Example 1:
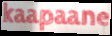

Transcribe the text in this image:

kaapaane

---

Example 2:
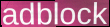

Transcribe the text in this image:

adblock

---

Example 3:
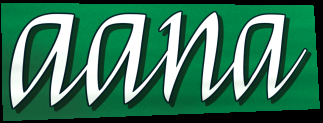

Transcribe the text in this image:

aana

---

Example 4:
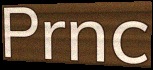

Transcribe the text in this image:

Prnc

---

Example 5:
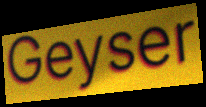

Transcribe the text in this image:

Geyser